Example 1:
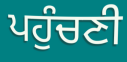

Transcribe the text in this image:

ਪਹੁੰਚਣੀ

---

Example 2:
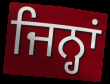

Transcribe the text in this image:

ਜਿਨ੍ਹਾਂ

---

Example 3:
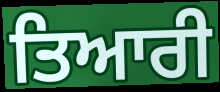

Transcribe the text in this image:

ਤਿਆਰੀ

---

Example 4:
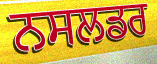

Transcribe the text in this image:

ਨਸਲਡਰ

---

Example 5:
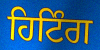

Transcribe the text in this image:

ਹਿਟਿੰਗ